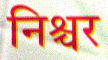
निश्चर